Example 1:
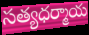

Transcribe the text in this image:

సత్యధర్మాయ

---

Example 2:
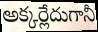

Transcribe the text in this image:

అక్కర్లేదుగానీ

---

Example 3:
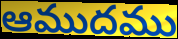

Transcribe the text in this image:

ఆముదము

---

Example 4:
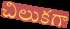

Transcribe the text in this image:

చిలుకగా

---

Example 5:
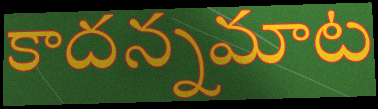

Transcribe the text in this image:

కాదన్నమాట